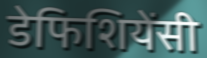
डेफिशियेंसी